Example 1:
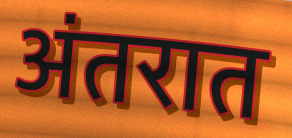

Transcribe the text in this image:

अंतरात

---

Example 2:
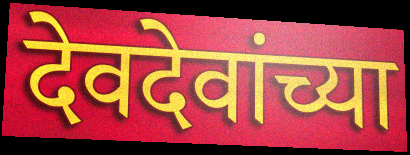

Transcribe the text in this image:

देवदेवांच्या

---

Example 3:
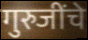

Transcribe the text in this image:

गुरुजींचे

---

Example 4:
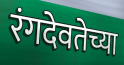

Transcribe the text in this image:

रंगदेवतेच्या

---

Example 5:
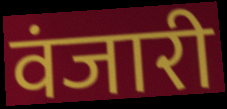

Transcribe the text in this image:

वंजारी